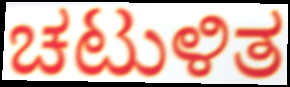
ಚಟುಳಿತ